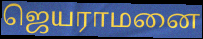
ஜெயராமனை